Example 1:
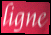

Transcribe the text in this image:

ligne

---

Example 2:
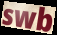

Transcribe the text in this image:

swb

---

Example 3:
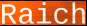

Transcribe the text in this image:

Raich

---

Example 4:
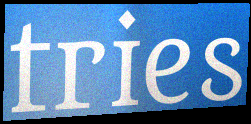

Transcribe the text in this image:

tries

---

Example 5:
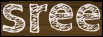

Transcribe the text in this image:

sree